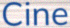
Cine